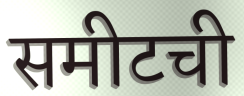
समीटची